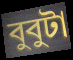
বুবুটা